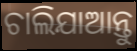
ଚାଲିଯାଆନ୍ତୁ